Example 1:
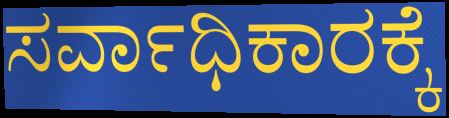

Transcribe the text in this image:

ಸರ್ವಾಧಿಕಾರಕ್ಕೆ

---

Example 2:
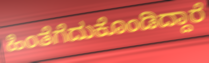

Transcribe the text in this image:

ಹಿಂತೆಗೆದುಕೊಂಡಿದ್ದಾರೆ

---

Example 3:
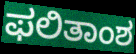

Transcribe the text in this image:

ಫಲಿತಾಂಶ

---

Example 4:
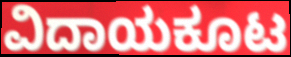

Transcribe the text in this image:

ವಿದಾಯಕೂಟ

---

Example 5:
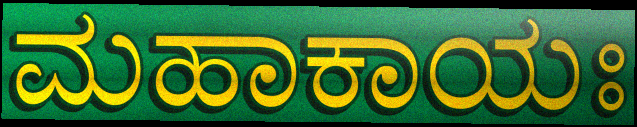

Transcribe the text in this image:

ಮಹಾಕಾಯಃ